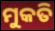
ମୁକତି